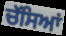
ਚੱਸਿਆਂ